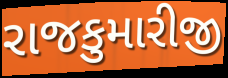
રાજકુમારીજી